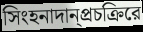
সিংহনাদান্প্রচক্রিরে